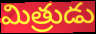
మిత్రుడు